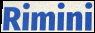
Rimini